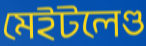
মেইটলেণ্ড